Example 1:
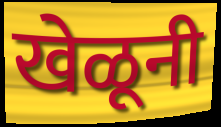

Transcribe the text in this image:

खेळूनी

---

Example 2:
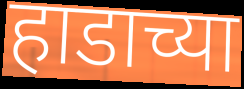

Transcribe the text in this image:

हाडाच्या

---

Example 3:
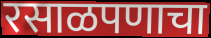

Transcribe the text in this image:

रसाळपणाचा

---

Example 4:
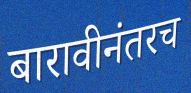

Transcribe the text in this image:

बारावीनंतरच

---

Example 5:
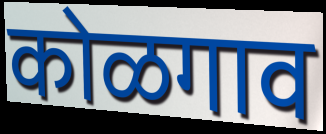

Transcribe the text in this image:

कोळगाव